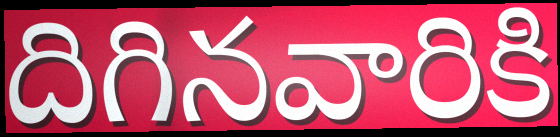
దిగినవారికి